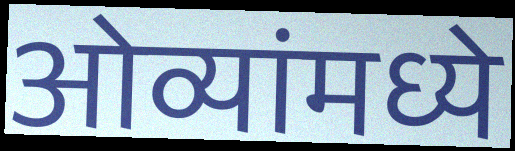
ओव्यांमध्ये